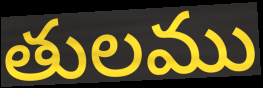
తులము